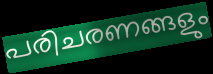
പരിചരണങ്ങളും